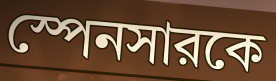
স্পেনসারকে